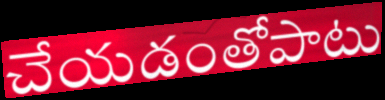
చేయడంతోపాటు